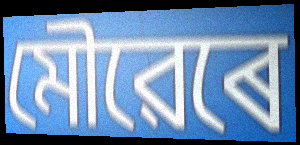
মৌৱেৰে